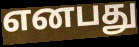
எனபது